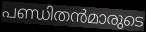
പണ്ഡിതൻമാരുടെ